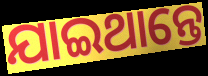
ଯାଇଥାନ୍ତେ